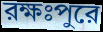
রক্ষঃপুরে